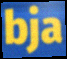
bja